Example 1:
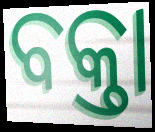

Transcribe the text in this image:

ବକ୍ତା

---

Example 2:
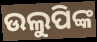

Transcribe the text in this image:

ଉଲୁପିଙ୍କ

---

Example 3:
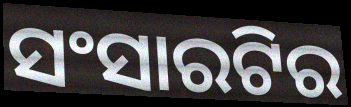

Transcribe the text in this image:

ସଂସାରଟିର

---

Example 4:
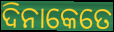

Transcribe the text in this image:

ଦିନାକେତେ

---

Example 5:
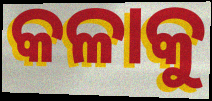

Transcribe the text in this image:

କଳାକୁ